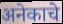
अनेकाचे